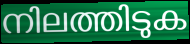
നിലത്തിടുക